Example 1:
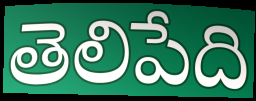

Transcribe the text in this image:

తెలిపేది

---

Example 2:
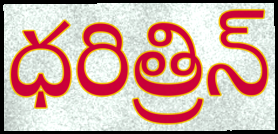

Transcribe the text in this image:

ధరిత్రిన్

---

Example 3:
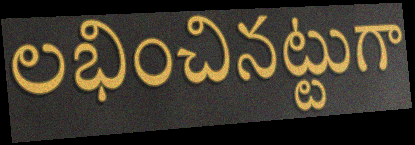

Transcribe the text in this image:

లభించినట్టుగా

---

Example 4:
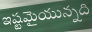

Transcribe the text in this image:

ఇష్టమైయున్నది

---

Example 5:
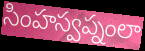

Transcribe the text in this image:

సింహస్వప్నంలా